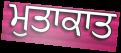
ਮੁਤਾਕਾਤ